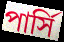
পার্সি